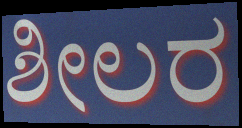
ಶೀಲರ